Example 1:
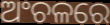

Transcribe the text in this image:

ଅଂଚଳରେ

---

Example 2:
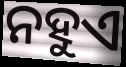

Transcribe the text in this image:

ନହୁଏ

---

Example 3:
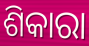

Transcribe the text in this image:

ଶିକାରା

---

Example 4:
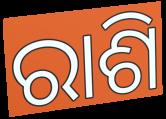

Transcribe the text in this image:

ରାଶି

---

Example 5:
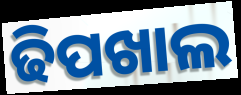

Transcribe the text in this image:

ଢିପଖାଲ